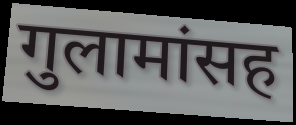
गुलामांसह